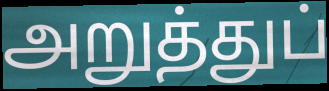
அறுத்துப்